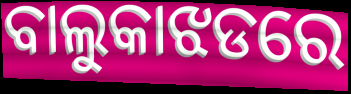
ବାଲୁକାଝଡରେ